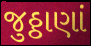
જુઠ્ઠાણાં